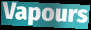
Vapours